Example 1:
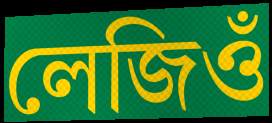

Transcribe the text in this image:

লেজিওঁ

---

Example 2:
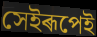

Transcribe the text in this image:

সেইৰূপেই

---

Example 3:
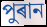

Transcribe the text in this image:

পুৰান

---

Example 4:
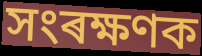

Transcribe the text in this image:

সংৰক্ষণক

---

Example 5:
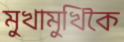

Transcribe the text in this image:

মুখামুখিকৈ